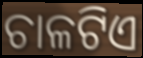
ଚାଳଟିଏ